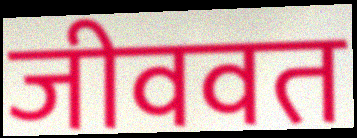
जीववत